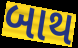
બાથ